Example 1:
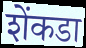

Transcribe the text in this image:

शेंकडा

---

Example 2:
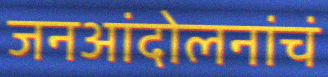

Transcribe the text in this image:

जनआंदोलनांचं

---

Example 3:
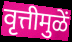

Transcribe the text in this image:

वृत्तीमुळें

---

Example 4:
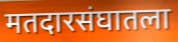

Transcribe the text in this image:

मतदारसंघातला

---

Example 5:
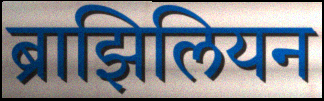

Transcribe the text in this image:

ब्राझिलियन